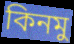
কিনমু